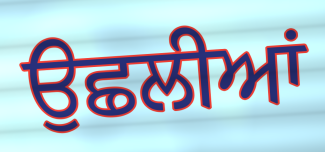
ਉਛਲੀਆਂ